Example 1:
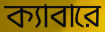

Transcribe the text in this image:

ক্যাবারে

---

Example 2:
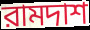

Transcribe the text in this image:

রামদাশ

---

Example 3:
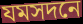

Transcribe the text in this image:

যমসদনে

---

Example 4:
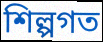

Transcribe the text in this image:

শিল্পগত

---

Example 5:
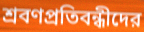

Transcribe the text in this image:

শ্রবণপ্রতিবন্ধীদের